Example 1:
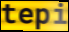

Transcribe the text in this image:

tepi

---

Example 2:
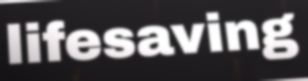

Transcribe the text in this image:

lifesaving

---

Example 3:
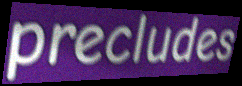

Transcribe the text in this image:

precludes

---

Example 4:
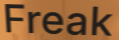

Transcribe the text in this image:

Freak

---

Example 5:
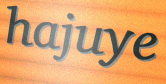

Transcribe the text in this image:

hajuye